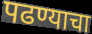
पढण्याचा